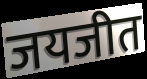
जयजीत